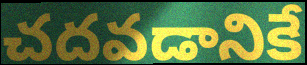
చదవడానికే